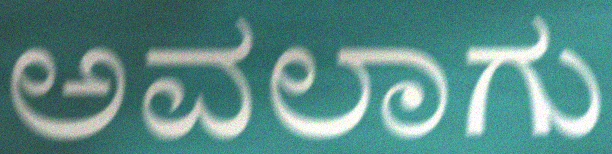
ಅವಲಾಗು